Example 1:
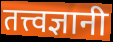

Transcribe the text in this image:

तत्त्वज्ञानी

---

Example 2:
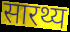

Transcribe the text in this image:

सारथ्य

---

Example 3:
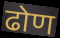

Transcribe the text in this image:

ढोण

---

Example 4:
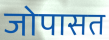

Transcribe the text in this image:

जोपासत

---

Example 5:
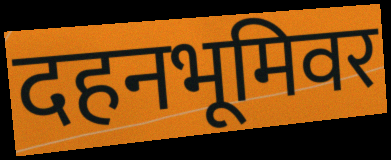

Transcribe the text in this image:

दहनभूमिवर